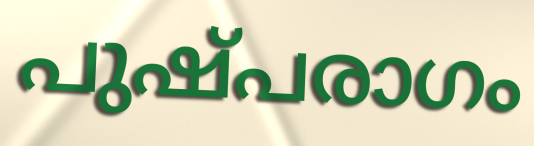
പുഷ്പരാഗം